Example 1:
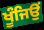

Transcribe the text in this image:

ਖੂੰਜਿਉਂ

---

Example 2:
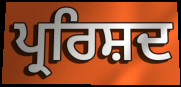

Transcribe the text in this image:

ਪ੍ਰਰਿਸ਼ਦ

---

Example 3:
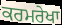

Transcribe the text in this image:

ਕਰਮਰੇਖਾ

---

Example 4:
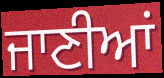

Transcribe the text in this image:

ਜਾਣੀਆਂ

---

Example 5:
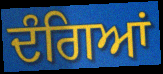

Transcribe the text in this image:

ਦੰਗਿਆਂ